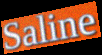
Saline